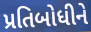
પ્રતિબોધીને